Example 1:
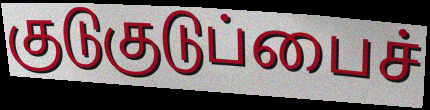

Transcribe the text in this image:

குடுகுடுப்பைச்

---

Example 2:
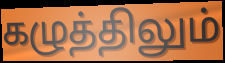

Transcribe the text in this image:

கழுத்திலும்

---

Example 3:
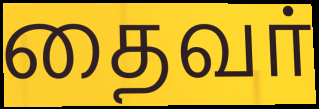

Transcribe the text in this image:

தைவர்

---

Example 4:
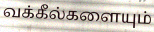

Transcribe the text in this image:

வக்கீல்களையும்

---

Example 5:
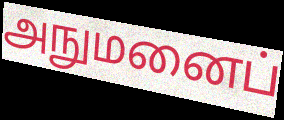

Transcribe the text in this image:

அநுமனைப்